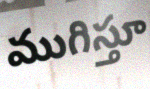
ముగిస్తూ